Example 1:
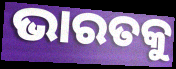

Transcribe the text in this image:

ଭାରତକୁ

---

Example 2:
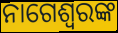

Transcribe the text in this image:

ନାଗେଶ୍ୱରଙ୍କ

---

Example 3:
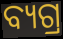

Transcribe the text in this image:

ବ୍ୟଗ୍ର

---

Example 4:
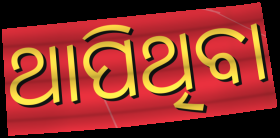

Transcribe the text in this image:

ଥାପିଥିବା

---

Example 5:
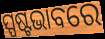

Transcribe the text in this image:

ସ୍ପଷ୍ଟଭାବରେ